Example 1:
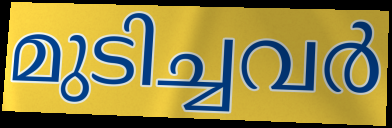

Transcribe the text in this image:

മുടിച്ചവർ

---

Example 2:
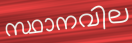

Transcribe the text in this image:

സ്ഥാനവില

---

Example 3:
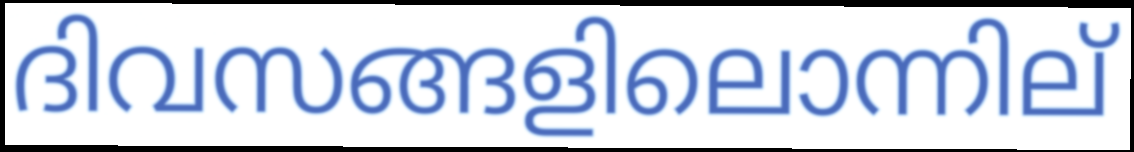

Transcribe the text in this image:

ദിവസങ്ങളിലൊന്നില്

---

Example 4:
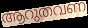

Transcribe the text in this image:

ആറുതവണ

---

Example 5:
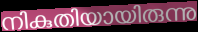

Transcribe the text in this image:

നികുതിയായിരുന്നു